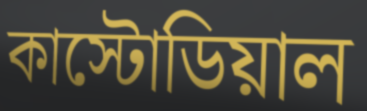
কাস্টোডিয়াল